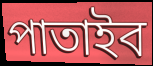
পাতাইব